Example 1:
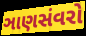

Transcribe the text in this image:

ઞાણસંવરો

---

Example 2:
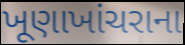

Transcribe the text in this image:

ખૂણાખાંચરાના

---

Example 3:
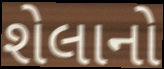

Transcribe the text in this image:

શેલાનો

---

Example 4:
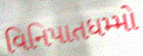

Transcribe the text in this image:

વિનિપાતધમ્મો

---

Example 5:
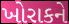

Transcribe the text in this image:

ખોરાકને